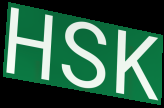
HSK